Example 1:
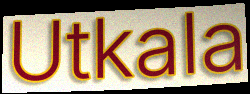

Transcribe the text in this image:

Utkala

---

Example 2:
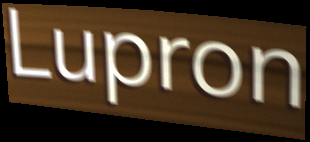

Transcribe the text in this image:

Lupron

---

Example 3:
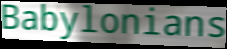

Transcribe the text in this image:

Babylonians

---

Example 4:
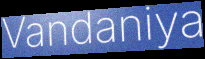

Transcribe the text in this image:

Vandaniya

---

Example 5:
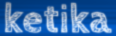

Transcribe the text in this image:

ketika